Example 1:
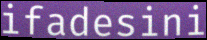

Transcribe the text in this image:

ifadesini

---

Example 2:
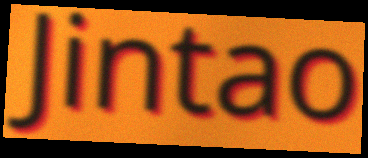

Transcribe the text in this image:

Jintao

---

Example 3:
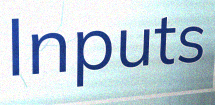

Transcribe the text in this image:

Inputs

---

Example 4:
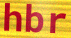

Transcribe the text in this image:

hbr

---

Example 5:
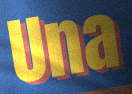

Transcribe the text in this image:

Una